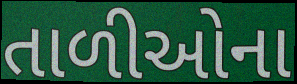
તાળીઓના